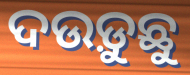
ଦଉଡ଼ୁଛୁ